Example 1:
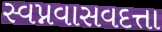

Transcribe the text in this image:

સ્વપ્નવાસવદત્તા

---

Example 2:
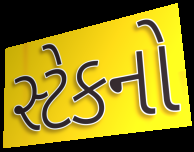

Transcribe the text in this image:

સ્ટેકનો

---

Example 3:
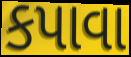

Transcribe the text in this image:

કપાવા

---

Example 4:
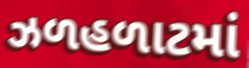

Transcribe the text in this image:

ઝળહળાટમાં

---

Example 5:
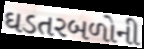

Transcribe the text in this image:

ઘડતરબળોની